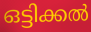
ഒട്ടിക്കൽ